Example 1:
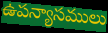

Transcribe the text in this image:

ఉపన్యాసములు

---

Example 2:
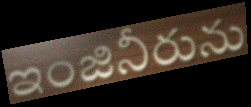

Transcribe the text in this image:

ఇంజినీరును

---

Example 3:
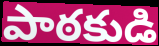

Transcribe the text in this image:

పాఠకుడి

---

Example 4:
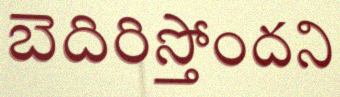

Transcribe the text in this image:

బెదిరిస్తోందని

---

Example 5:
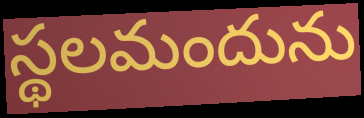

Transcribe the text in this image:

స్థలమందును